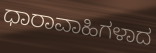
ಧಾರಾವಾಹಿಗಳಾದ